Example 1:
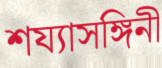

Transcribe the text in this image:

শয্যাসঙ্গিনী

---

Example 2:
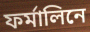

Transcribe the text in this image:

ফর্মালিনে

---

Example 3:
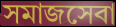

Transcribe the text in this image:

সমাজসেবা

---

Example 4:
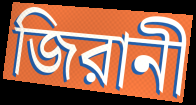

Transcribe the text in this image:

জিরানী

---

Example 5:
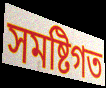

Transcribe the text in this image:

সমষ্টিগত